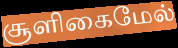
சூளிகைமேல்